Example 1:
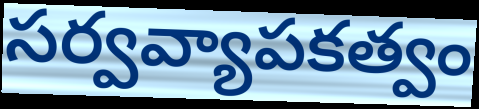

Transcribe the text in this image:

సర్వవ్యాపకత్వం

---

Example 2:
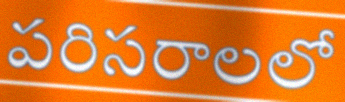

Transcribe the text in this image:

పరిసరాలలో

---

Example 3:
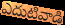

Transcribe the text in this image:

ఎదుటివాడి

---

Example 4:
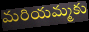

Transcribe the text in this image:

మరియమ్మకు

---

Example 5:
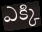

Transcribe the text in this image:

ఎక్కి